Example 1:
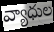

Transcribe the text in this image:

వ్యాధుల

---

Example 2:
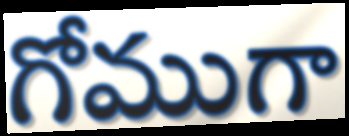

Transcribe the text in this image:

గోముగా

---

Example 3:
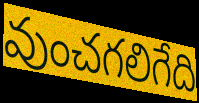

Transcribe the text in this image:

వుంచగలిగేది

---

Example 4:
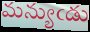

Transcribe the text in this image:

మన్యుఁడు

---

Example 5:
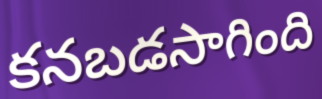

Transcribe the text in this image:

కనబడసాగింది